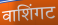
वाशिंगट